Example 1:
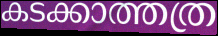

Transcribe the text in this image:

കടക്കാത്തത്ര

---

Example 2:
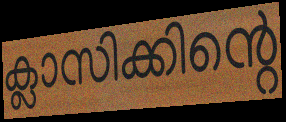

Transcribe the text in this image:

ക്ലാസിക്കിന്റെ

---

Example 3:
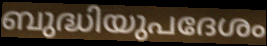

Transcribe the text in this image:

ബുദ്ധിയുപദേശം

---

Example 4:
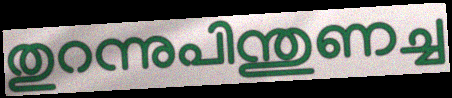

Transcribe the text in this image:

തുറന്നുപിന്തുണച്ച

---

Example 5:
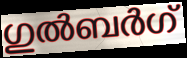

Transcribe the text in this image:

ഗുൽബർഗ്